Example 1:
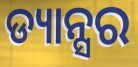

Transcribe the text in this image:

ଡ୍ୟାନ୍ସର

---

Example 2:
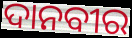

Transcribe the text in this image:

ଦାନବୀର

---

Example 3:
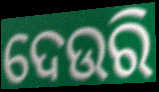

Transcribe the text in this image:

ଦେଉରି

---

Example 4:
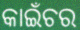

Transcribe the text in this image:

କାଇଁଚର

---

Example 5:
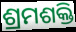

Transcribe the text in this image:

ଶ୍ରମଶକ୍ତି